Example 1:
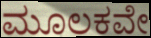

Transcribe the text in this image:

ಮೂಲಕವೇ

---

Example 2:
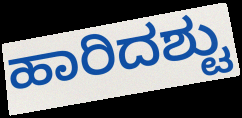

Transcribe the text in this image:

ಹಾರಿದಶ್ಟು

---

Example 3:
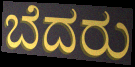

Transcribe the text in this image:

ಬೆದರು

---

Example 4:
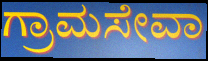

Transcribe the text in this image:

ಗ್ರಾಮಸೇವಾ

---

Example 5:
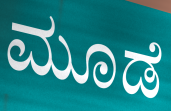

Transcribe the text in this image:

ಮೂಡೆ